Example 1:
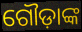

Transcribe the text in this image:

ଗୌଡ଼ାଙ୍କ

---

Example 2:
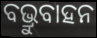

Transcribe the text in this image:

ବଭ୍ରୁବାହନ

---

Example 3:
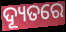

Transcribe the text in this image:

ଦ୍ୟୂତରେ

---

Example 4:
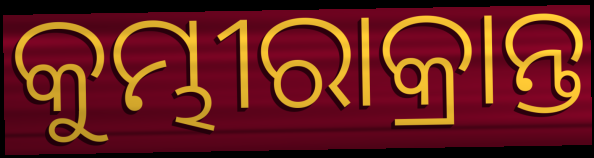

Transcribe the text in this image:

କୁମ୍ଭୀରାକ୍ରାନ୍ତ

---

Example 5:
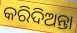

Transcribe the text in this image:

କରିଦିଅନ୍ତା